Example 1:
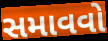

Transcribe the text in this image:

સમાવવો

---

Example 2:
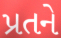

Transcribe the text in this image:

પ્રતને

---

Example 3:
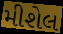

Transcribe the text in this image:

મીશેલ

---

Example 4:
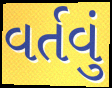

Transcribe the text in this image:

વર્તવું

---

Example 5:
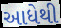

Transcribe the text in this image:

આધેથી